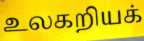
உலகறியக்